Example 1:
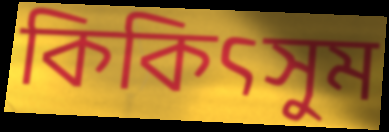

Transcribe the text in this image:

কিকিৎসুম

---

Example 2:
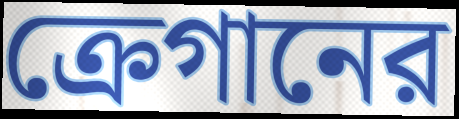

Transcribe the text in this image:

ক্রেগানের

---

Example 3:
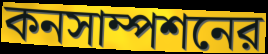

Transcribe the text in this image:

কনসাম্পশনের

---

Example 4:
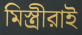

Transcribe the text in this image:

মিস্ত্রীরাই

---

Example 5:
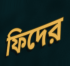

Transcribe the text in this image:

ফিদের